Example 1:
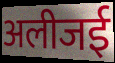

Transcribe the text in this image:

अलीजई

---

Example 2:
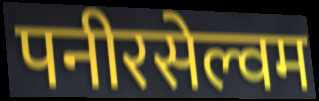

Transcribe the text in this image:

पनीरसेल्वम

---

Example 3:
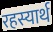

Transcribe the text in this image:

रहस्यार्थ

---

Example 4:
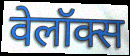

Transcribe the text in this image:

वेलॉक्स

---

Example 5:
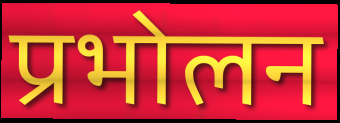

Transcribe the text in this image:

प्रभोलन